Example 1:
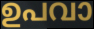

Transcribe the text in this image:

ഉപവാ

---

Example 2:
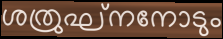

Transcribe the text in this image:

ശത്രുഘ്നനോടും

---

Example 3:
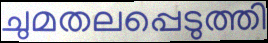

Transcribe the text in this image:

ചുമതലപ്പെടുത്തി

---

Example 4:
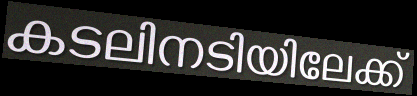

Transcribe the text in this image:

കടലിനടിയിലേക്ക്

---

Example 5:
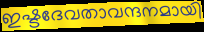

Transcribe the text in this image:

ഇഷ്ടദേവതാവന്ദനമായി